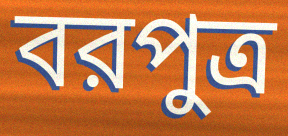
বরপুত্র